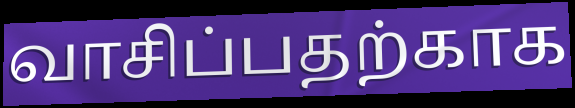
வாசிப்பதற்காக